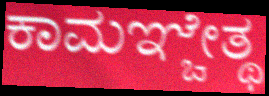
ಕಾಮಞ್ಚೇತ್ಥ